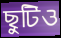
ছুটিও